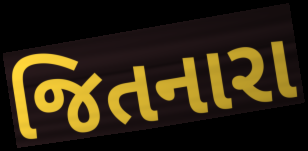
જિતનારા